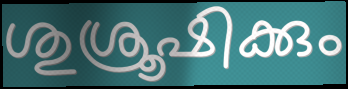
ശുശ്രൂഷിക്കും